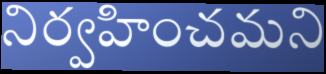
నిర్వహించమని